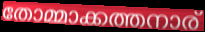
തോമ്മാക്കത്തനാര്